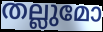
തല്ലുമോ